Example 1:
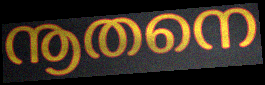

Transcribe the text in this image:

നൂതനെ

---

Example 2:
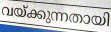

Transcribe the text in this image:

വയ്ക്കുന്നതായി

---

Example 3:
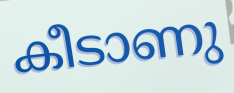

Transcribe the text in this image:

കീടാണു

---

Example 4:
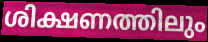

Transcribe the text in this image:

ശിക്ഷണത്തിലും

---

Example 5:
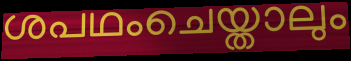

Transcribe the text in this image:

ശപഥംചെയ്താലും